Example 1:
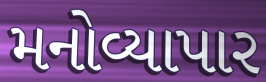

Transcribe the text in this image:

મનોવ્યાપાર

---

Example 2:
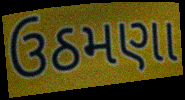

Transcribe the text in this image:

ઉઠમણા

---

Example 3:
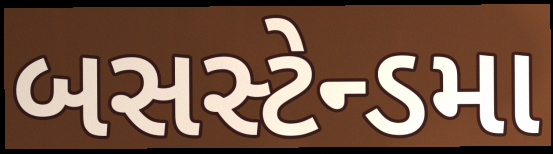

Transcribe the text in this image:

બસસ્ટેન્ડમા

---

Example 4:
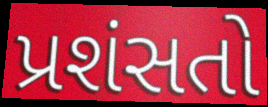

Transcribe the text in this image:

પ્રશંસતો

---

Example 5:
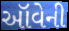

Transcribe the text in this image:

ઑવેની